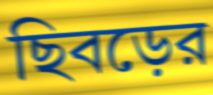
ছিবড়ের